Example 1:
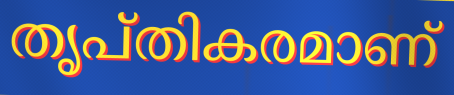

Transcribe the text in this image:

തൃപ്തികരമാണ്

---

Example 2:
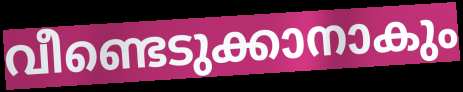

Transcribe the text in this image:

വീണ്ടെടുക്കാനാകും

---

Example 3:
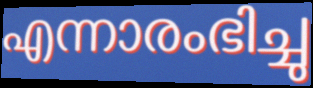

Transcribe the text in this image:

എന്നാരംഭിച്ചു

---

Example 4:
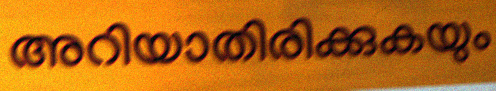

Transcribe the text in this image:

അറിയാതിരിക്കുകയും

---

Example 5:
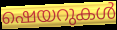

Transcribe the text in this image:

ഷെയറുകൾ